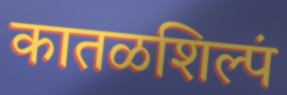
कातळशिल्पं